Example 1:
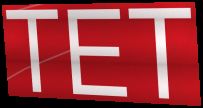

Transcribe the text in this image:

TET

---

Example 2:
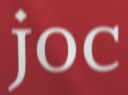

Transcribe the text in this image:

joc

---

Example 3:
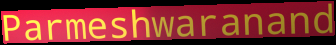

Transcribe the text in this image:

Parmeshwaranand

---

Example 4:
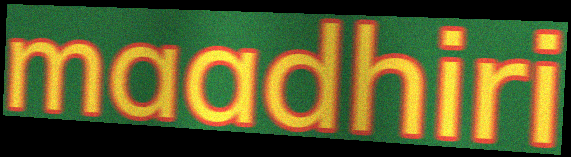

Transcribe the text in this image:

maadhiri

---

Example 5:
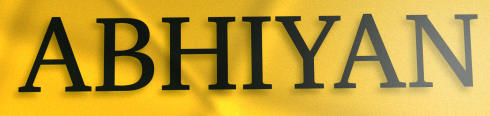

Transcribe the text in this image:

ABHIYAN